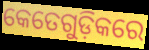
କେତେଗୁଡ଼ିକରେ